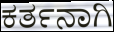
ಕರ್ತನಾಗಿ